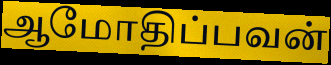
ஆமோதிப்பவன்